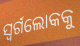
ସ୍ବର୍ଗଲୋକକୁ